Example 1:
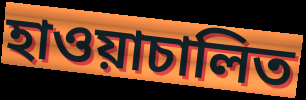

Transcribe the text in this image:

হাওয়াচালিত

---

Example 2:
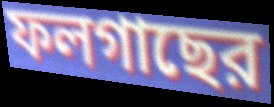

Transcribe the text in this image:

ফলগাছের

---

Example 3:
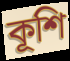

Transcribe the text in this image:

কূশি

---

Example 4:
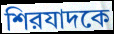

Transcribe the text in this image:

শিরযাদকে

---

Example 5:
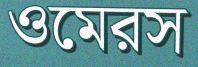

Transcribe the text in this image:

ওমেরস